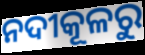
ନଦୀକୂଳରୁ